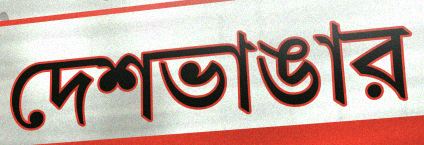
দেশভাঙার